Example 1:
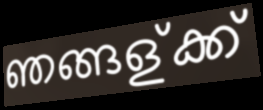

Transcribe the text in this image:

ഞങ്ങള്ക്ക്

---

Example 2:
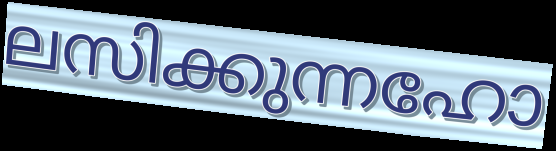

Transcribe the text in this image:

ലസിക്കുന്നഹോ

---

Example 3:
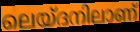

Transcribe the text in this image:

ലെയ്ദനിലാണ്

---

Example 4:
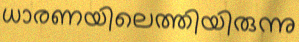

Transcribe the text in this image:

ധാരണയിലെത്തിയിരുന്നു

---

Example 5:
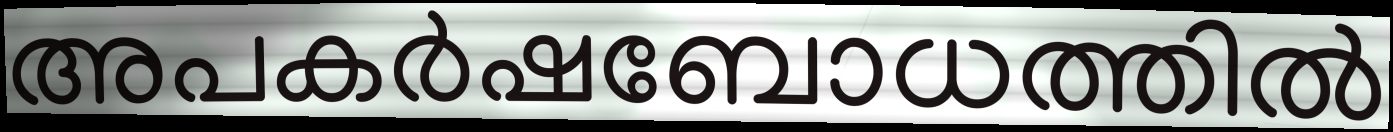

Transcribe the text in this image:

അപകർഷബോധത്തിൽ